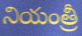
నియంత్రీ